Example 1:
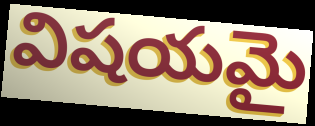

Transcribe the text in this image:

విషయమై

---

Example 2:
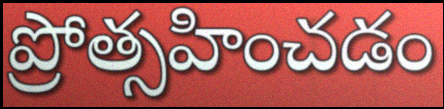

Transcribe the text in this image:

ప్రోత్సహించడం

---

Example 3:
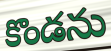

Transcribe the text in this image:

కొండను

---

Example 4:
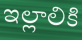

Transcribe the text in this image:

ఇల్లాలికి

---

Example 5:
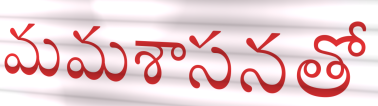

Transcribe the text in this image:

మమశాసనతో